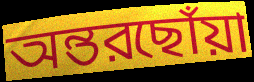
অন্তরছোঁয়া